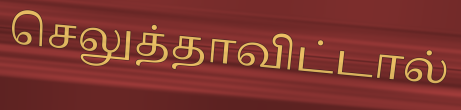
செலுத்தாவிட்டால்